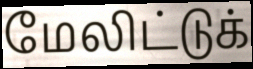
மேலிட்டுக்